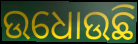
ଉଧୋଉଛି